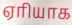
ஏரியாக